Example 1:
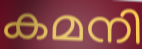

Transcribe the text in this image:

കമനി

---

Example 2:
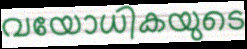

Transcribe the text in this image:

വയോധികയുടെ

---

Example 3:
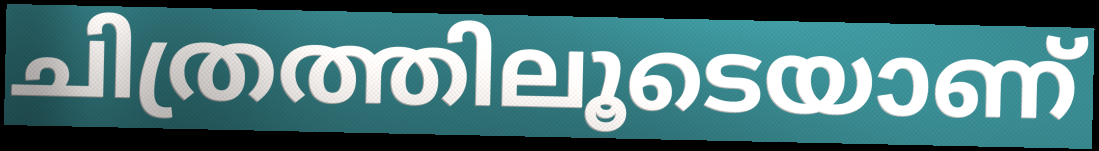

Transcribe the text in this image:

ചിത്രത്തിലൂടെയാണ്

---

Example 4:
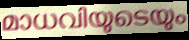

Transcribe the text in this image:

മാധവിയുടെയും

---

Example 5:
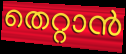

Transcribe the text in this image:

തെറ്റാൻ